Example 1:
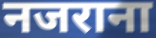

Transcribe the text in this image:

नजराना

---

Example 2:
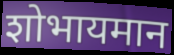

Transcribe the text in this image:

शोभायमान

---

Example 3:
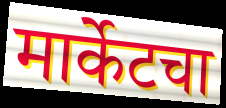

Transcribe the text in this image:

मार्केटचा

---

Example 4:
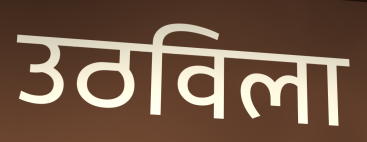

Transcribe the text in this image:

उठविला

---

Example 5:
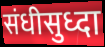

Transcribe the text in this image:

संधीसुध्दा